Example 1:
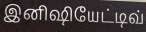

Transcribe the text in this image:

இனிஷியேட்டிவ்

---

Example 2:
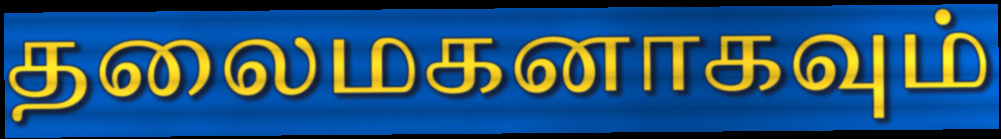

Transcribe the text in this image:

தலைமகனாகவும்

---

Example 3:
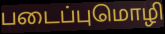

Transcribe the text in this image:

படைப்புமொழி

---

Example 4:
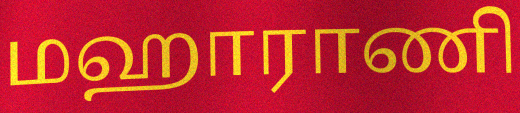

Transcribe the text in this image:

மஹாராணி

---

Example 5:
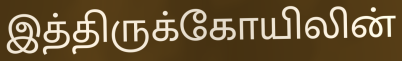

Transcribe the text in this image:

இத்திருக்கோயிலின்